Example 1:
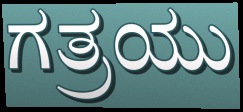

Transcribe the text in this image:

ಗತ್ರಯು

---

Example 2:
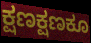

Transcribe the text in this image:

ಕ್ಷಣಕ್ಷಣಕೂ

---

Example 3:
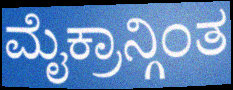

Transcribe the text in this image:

ಮೈಕ್ರಾನ್ಗಿಂತ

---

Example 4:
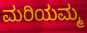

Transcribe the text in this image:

ಮರಿಯಮ್ಮ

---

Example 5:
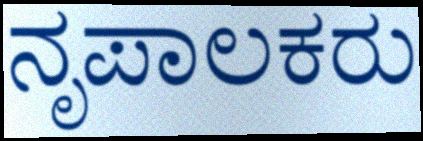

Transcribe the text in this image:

ನೃಪಾಲಕರು